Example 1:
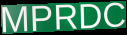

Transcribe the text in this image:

MPRDC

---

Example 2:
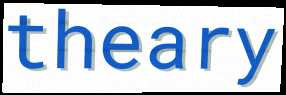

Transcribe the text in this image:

theary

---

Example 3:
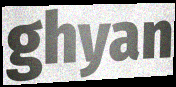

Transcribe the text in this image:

ghyan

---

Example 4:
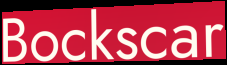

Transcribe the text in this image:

Bockscar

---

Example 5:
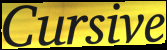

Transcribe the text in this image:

Cursive